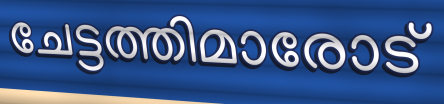
ചേട്ടത്തിമാരോട്